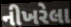
નીખરેલા